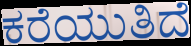
ಕರೆಯುತಿದೆ